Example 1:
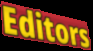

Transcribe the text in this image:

Editors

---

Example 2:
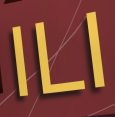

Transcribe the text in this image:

ILI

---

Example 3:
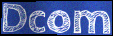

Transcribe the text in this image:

Dcom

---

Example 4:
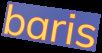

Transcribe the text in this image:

baris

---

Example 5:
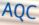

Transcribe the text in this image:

AQC